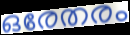
ഒരേതരം